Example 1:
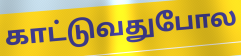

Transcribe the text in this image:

காட்டுவதுபோல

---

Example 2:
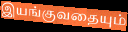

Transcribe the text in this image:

இயங்குவதையும்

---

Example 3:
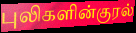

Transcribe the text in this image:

புலிகளின்குரல்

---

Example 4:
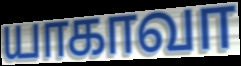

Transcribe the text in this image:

யாகாவா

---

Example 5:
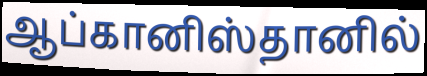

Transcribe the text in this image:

ஆப்கானிஸ்தானில்